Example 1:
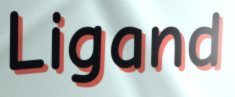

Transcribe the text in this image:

Ligand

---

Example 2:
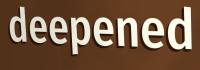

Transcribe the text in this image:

deepened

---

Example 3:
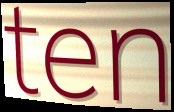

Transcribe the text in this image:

ten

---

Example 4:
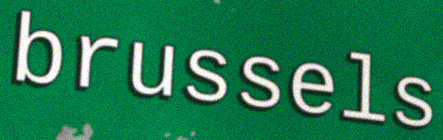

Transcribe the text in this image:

brussels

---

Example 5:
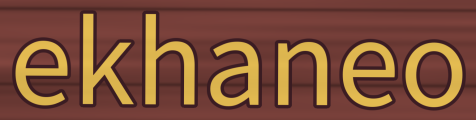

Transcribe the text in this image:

ekhaneo